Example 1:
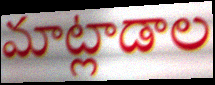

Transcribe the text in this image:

మాట్లాడాల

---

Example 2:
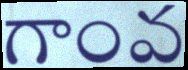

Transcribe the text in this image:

గాంవ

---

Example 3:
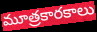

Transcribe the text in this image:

మూత్రకారకాలు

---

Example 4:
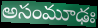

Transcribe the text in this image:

అసంమూఢః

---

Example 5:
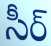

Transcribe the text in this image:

సీర్